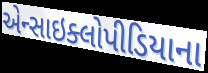
એન્સાઇક્લોપીડિયાના